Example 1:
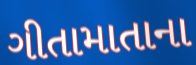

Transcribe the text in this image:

ગીતામાતાના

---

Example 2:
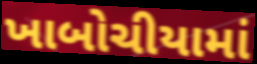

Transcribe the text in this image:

ખાબોચીયામાં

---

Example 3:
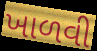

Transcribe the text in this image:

ખાળવી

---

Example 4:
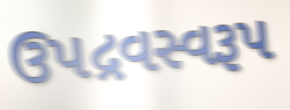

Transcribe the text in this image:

ઉપદ્રવસ્વરૂપ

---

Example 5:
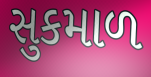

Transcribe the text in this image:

સુકમાળ